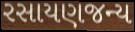
રસાયણજન્ય